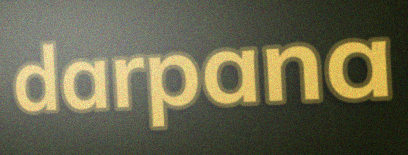
darpana